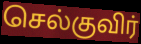
செல்குவிர்